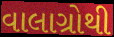
વાલાગ્રોથી